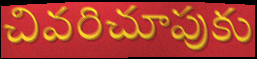
చివరిచూపుకు